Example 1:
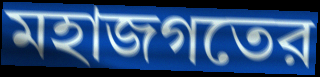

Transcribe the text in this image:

মহাজগতের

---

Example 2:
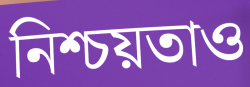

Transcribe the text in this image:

নিশ্চয়তাও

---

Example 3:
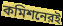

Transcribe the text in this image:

কমিশনেরই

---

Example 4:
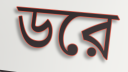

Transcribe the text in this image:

ডরে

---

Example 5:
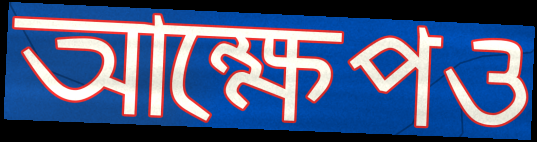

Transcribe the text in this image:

আক্ষেপও